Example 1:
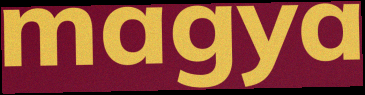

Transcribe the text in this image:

magya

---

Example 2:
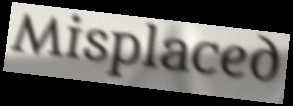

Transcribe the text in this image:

Misplaced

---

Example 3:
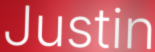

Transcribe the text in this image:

Justin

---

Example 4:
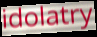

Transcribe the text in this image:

idolatry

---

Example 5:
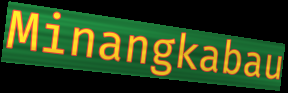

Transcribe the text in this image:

Minangkabau